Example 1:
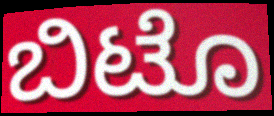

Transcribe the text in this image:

ಬಿಟೊ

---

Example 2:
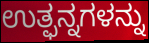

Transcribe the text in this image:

ಉತ್ಫನ್ನಗಳನ್ನು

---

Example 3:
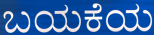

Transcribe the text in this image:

ಬಯಕೆಯ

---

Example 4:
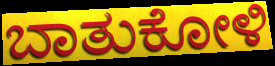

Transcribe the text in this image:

ಬಾತುಕೋಳಿ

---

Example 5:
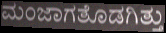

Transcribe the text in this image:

ಮಂಜಾಗತೊಡಗಿತ್ತು